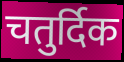
चतुर्दिक